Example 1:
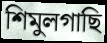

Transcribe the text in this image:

শিমুলগাছি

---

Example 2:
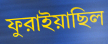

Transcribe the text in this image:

ফুরাইয়াছিল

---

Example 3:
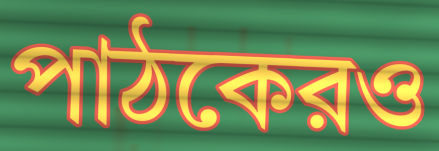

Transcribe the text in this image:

পাঠকেরও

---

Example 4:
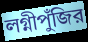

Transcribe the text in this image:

লগ্নীপুঁজির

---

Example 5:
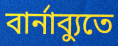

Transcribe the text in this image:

বার্নাব্যুতে